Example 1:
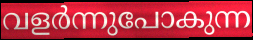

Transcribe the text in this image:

വളർന്നുപോകുന്ന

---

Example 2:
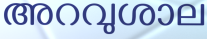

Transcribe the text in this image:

അറവുശാല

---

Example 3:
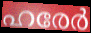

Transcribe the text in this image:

ഹരേർ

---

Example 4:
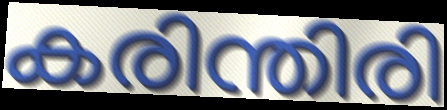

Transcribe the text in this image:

കരിന്തിരി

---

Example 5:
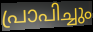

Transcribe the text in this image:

പ്രാപിച്ചും